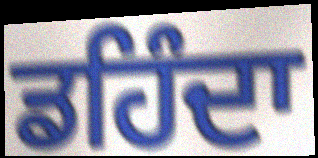
ਡਹਿੰਦਾ